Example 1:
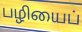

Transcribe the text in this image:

பழியைப்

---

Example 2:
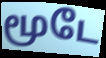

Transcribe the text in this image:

மூடே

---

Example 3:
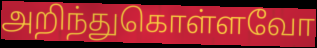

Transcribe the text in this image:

அறிந்துகொள்ளவோ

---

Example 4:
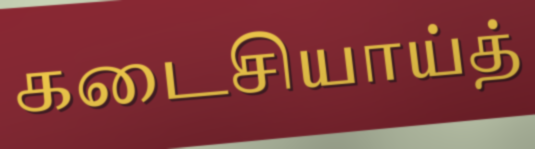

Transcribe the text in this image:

கடைசியாய்த்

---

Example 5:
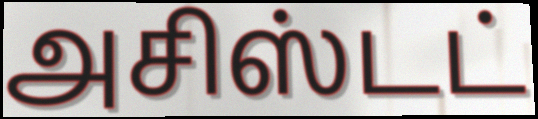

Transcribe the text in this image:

அசிஸ்டட்